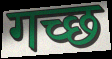
गच्छ